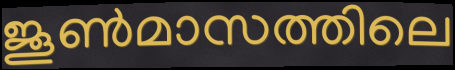
ജൂൺമാസത്തിലെ